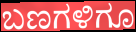
ಬಣಗಳಿಗೂ